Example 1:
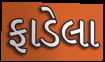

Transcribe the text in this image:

ફાડેલા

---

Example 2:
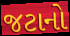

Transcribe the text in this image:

જટાનો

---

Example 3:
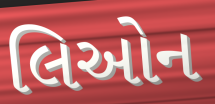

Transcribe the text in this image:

લિઓન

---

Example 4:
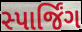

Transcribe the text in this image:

સ્પાર્જિંગ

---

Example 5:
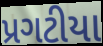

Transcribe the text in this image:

પ્રગટીયા